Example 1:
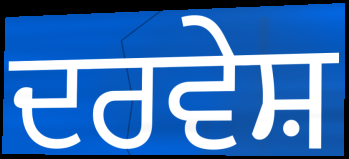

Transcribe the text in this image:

ਦਰਵੇਸ਼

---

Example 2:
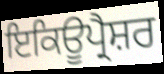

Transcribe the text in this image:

ਇਕਿਊਪ੍ਰੈਸ਼ਰ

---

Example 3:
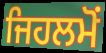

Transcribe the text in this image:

ਜਿਹਲਮੋਂ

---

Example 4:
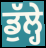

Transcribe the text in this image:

ਡੁੱਲ੍ਹੇ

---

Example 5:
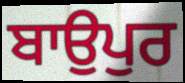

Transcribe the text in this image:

ਬਾਉਪੁਰ